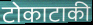
टोकाटाकी